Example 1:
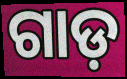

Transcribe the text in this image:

ଗାଡ଼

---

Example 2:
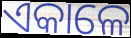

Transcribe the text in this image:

ଏକାଳେ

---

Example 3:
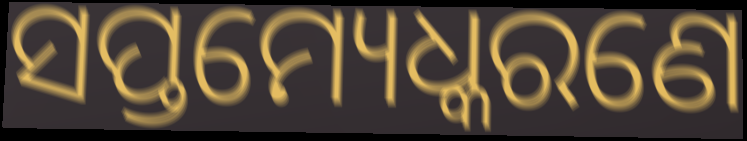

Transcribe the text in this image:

ସପ୍ତମ୍ୟେଧ୍କରଣେ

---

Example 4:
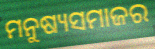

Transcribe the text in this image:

ମନୁଷ୍ୟସମାଜର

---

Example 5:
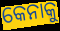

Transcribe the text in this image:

କେନାକୁ